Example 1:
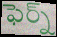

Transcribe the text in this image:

ఫెర్న్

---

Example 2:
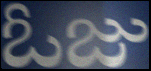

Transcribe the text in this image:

ఓజు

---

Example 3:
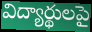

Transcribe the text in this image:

విద్యార్థులపై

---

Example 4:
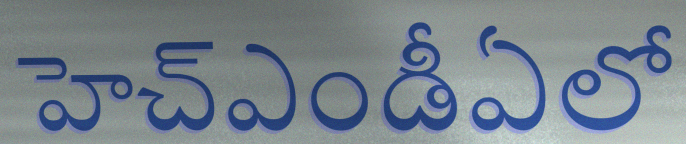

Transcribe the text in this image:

హెచ్ఎండీఏలో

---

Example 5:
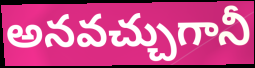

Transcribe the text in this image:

అనవచ్చుగానీ